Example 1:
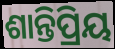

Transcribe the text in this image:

ଶାନ୍ତିପ୍ରିୟ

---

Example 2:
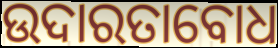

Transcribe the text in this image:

ଉଦାରତାବୋଧ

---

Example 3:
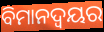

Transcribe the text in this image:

ବିମାନଦ୍ବୟର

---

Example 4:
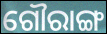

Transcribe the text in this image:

ଗୌରାଙ୍ଗ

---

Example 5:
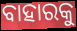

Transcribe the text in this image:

ବାହାରକୁ